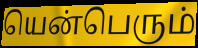
யென்பெரும்